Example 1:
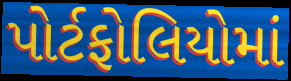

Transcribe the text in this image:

પોર્ટફોલિયોમાં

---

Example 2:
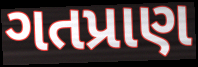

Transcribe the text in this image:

ગતપ્રાણ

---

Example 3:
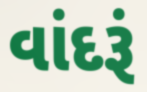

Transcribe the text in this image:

વાંદરૂં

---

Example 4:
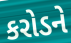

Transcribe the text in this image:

કરોડને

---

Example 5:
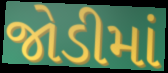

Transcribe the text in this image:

જોડીમાં